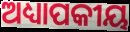
ଅଧ୍ୟାପକୀୟ